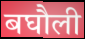
बघौली